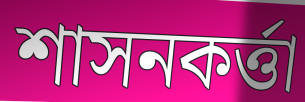
শাসনকৰ্ত্তা